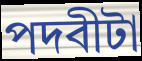
পদবীটা